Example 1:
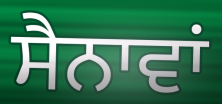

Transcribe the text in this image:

ਸੈਨਾਵਾਂ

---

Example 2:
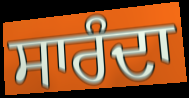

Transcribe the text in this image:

ਸਾਰੰਦਾ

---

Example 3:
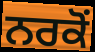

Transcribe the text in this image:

ਨਰਕੋਂ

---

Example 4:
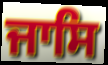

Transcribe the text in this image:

ਜਾਸਿ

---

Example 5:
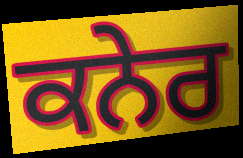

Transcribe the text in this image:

ਕਨੇਰ